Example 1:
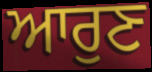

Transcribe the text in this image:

ਆਰੁਣ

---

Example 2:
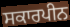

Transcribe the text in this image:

ਸਕਾਰਪੀਨ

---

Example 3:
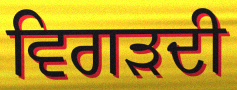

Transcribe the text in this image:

ਵਿਗੜਦੀ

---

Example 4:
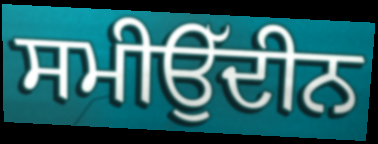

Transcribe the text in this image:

ਸਮੀਉੱਦੀਨ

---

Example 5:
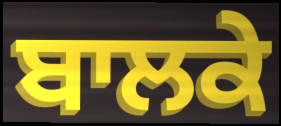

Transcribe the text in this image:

ਬਾਲਕੇ